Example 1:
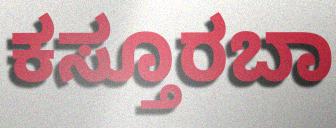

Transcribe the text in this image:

ಕಸ್ತೂರಬಾ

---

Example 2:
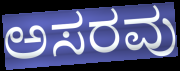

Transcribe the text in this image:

ಅಸರವು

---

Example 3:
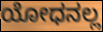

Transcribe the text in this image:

ಯೋಧನಲ್ಲ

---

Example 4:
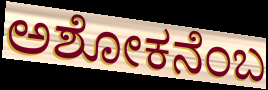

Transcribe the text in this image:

ಅಶೋಕನೆಂಬ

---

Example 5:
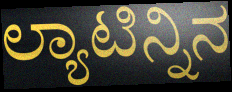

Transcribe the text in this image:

ಲ್ಯಾಟಿನ್ನಿನ